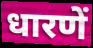
धारणें